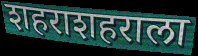
शहराशहराला